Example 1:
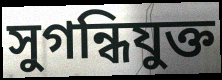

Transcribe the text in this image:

সুগন্ধিযুক্ত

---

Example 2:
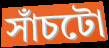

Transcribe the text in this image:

সাঁচটো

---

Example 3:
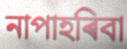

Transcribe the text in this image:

নাপাহৰিবা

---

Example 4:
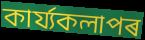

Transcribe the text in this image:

কাৰ্য্যকলাপৰ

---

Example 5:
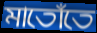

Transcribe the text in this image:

মাতোঁতে